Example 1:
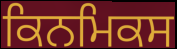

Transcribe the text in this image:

ਕਿਨਮਿਕਸ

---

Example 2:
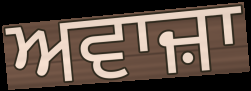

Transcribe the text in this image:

ਅਵਾਜ਼ਾ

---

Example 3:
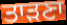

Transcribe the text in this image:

ਤਾੜਣਾ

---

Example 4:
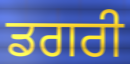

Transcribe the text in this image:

ਡਗਰੀ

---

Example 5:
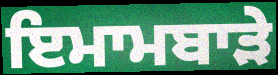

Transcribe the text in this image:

ਇਮਾਮਬਾੜੇ